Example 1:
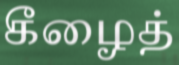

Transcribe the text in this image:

கீழைத்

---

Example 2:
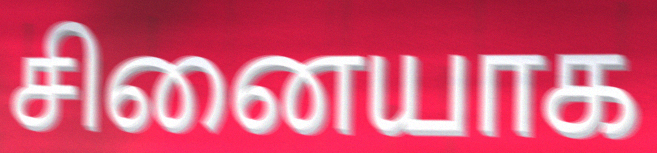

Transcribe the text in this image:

சினையாக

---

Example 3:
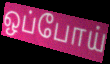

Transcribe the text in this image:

ஒப்போய்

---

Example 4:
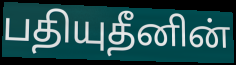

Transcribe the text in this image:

பதியுதீனின்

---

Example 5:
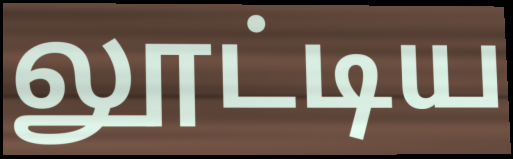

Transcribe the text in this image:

லூட்டிய